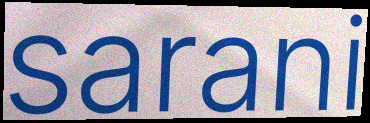
sarani